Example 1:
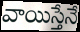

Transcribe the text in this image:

వాయిస్తేనే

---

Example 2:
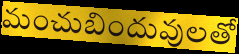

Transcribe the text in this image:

మంచుబిందువులతో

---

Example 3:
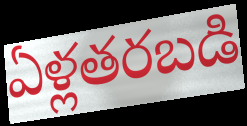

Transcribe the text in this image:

ఏళ్లతరబడి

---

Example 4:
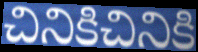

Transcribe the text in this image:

చినికిచినికి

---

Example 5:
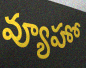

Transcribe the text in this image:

వ్యూహో